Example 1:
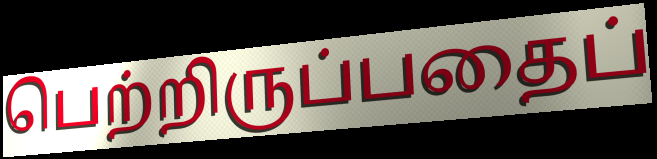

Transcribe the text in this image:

பெற்றிருப்பதைப்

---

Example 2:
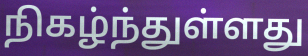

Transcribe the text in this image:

நிகழ்ந்துள்ளது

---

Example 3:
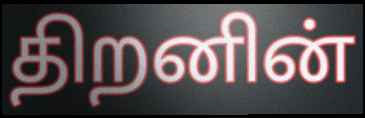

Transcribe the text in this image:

திறனின்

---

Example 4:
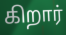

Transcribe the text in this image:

கிறார்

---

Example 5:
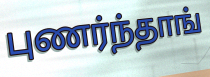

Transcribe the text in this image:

புணர்ந்தாங்